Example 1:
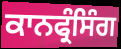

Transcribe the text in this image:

ਕਾਨਫ੍ਰੰਸਿੰਗ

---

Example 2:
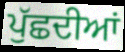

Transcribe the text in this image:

ਪੁੱਛਦੀਆਂ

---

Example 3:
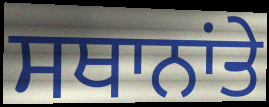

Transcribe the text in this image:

ਸਥਾਨਾਂਤੇ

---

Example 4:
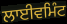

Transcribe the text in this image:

ਲਾਈਵਮਿੰਟ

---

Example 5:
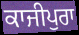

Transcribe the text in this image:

ਕਾਜੀਪੁਰਾ